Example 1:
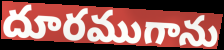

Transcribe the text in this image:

దూరముగాను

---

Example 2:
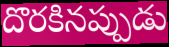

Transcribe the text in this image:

దొరకినప్పుడు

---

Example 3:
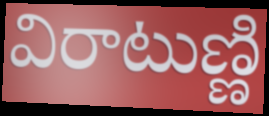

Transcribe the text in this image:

విరాటుణ్ణి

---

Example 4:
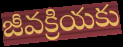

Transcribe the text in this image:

జీవక్రియకు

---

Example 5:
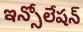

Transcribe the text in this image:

ఇన్సోలేషన్